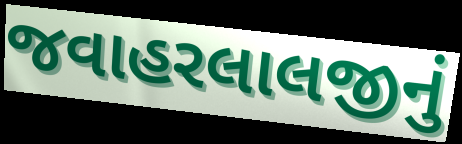
જવાહરલાલજીનું